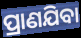
ପ୍ରାଣଯିବା